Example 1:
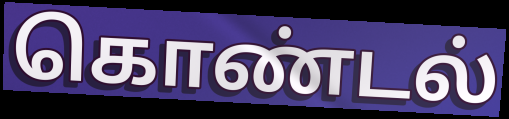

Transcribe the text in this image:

கொண்டல்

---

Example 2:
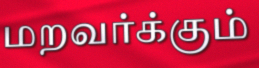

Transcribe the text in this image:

மறவர்க்கும்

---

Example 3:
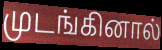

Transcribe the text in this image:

முடங்கினால்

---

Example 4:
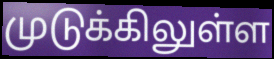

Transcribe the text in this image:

முடுக்கிலுள்ள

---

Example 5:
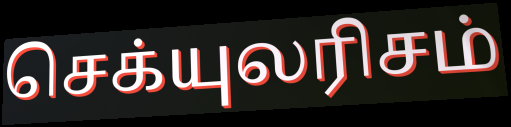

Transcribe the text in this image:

செக்யுலரிசம்